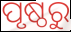
ପୃଷ୍ଠରୁ